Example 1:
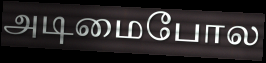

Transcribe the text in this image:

அடிமைபோல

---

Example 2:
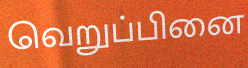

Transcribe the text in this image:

வெறுப்பினை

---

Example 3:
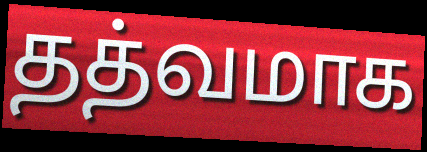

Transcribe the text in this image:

தத்வமாக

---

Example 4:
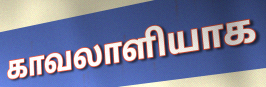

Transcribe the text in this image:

காவலாளியாக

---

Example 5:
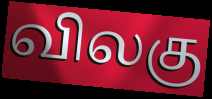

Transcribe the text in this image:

விலகு